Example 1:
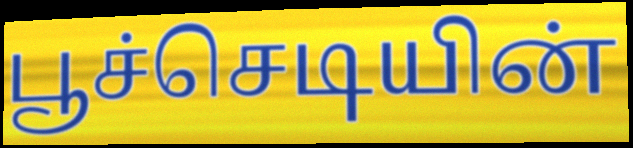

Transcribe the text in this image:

பூச்செடியின்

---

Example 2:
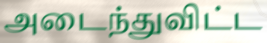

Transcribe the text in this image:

அடைந்துவிட்ட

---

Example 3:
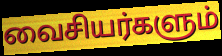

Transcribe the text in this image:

வைசியர்களும்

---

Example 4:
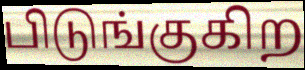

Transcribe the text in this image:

பிடுங்குகிற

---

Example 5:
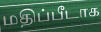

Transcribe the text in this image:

மதிப்பீடாக